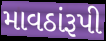
માવઠાંરૂપી